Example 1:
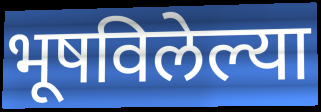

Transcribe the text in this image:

भूषविलेल्या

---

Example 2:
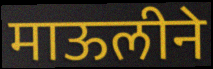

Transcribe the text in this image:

माऊलीने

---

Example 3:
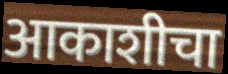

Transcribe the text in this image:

आकाशीचा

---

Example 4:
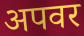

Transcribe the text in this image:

अपवर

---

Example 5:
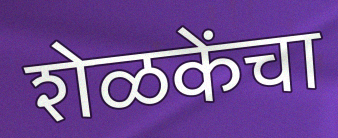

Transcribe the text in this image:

शेळकेंचा